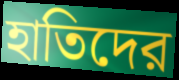
হাতিদের